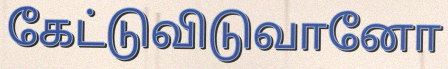
கேட்டுவிடுவானோ